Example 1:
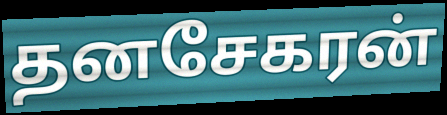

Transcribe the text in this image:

தனசேகரன்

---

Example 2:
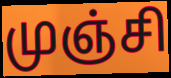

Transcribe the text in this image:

முஞ்சி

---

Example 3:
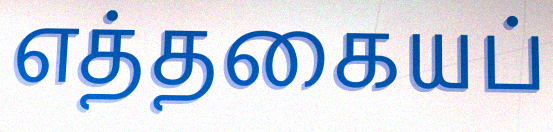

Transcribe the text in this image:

எத்தகையப்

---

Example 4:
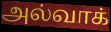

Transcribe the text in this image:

அல்வாக்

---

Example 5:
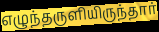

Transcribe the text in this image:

எழுந்தருளியிருந்தார்